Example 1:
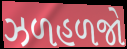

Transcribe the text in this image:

ઝળહળજો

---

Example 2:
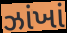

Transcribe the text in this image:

ઝાંખાં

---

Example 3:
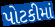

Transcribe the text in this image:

પોટકીમાં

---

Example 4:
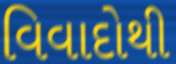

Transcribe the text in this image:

વિવાદોથી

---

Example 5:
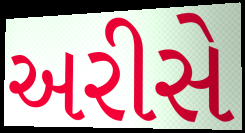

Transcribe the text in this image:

અરીસે